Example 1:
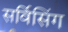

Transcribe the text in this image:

सर्विसिंग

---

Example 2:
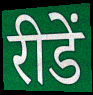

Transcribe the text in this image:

रीडें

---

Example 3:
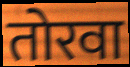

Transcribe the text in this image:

तोरवा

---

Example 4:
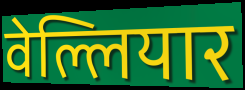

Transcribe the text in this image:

वेल्लियार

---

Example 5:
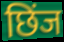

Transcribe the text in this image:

छिंज